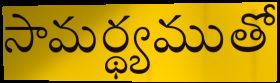
సామర్థ్యముతో